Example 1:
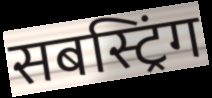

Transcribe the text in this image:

सबस्ट्रिंग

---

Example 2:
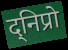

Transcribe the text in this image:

द्निप्रो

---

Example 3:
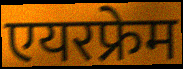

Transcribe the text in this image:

एयरफ्रेम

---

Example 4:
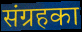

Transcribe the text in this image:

संग्रहका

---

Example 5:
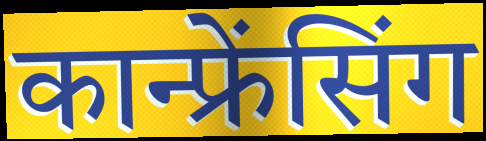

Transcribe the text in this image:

कान्फ्रेंसिंग